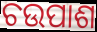
ଚଉପାଶ